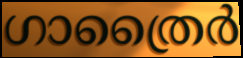
ഗാത്രൈർ